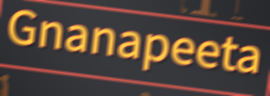
Gnanapeeta